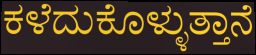
ಕಳೆದುಕೊಳ್ಳುತ್ತಾನೆ